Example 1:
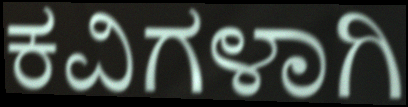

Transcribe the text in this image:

ಕವಿಗಳಾಗಿ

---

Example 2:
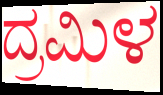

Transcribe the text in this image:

ದ್ರಮಿಳ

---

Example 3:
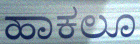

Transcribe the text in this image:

ಹಾಕಲೂ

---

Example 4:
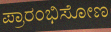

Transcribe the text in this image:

ಪ್ರಾರಂಭಿಸೋಣ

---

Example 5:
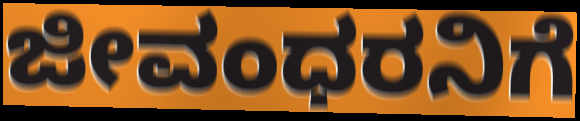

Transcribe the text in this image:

ಜೀವಂಧರನಿಗೆ